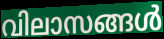
വിലാസങ്ങൾ